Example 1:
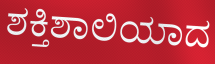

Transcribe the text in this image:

ಶಕ್ತಿಶಾಲಿಯಾದ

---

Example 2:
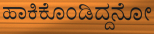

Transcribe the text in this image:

ಹಾಕಿಕೊಂಡಿದ್ದನೋ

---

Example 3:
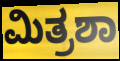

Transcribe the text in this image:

ಮಿತ್ರಶಾ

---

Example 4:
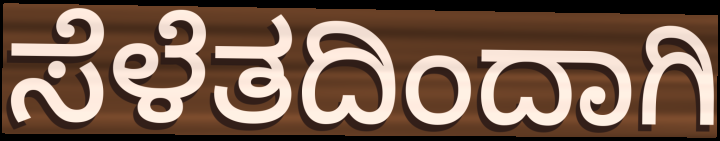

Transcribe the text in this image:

ಸೆಳೆತದಿಂದಾಗಿ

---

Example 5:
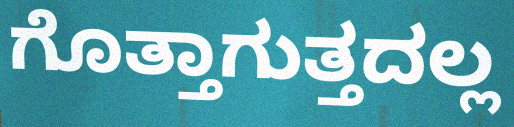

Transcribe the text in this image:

ಗೊತ್ತಾಗುತ್ತದಲ್ಲ